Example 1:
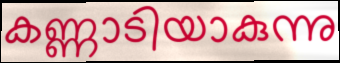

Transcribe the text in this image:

കണ്ണാടിയാകുന്നു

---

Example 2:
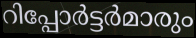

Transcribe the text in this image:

റിപ്പോർട്ടർമാരും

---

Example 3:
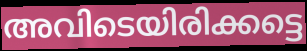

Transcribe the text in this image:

അവിടെയിരിക്കട്ടെ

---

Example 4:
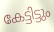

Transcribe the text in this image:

കേട്ടിട്ടും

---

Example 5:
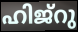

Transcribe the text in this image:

ഹിജ്റു